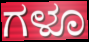
ಗಳೂ